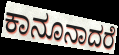
ಕಾನೂನಾದರೆ